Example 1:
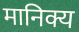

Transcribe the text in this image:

मानिक्य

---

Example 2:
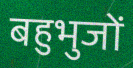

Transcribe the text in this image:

बहुभुजों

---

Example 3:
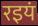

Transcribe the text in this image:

रइयं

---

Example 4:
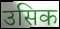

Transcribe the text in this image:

उसिक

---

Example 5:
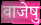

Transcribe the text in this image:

वाजेषु